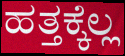
ಹತ್ತಕ್ಕೆಲ್ಲ